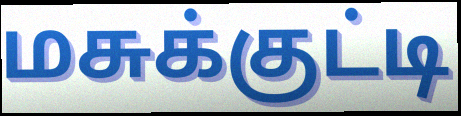
மசுக்குட்டி